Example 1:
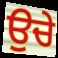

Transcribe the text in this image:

ਉਚੇ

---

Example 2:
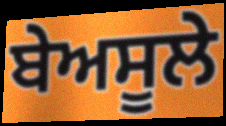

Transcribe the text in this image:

ਬੇਅਸੂਲੇ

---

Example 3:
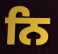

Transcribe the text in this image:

ਨਿ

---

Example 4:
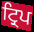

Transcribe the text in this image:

ਟ੍ਰਿਪ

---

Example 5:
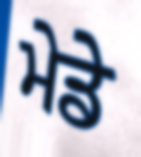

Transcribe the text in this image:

ਮੇਡੇ